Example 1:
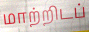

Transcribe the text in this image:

மாற்றிடப்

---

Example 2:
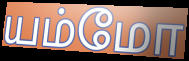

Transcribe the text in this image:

யம்மோ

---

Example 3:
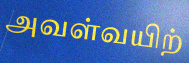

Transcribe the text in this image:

அவள்வயிற்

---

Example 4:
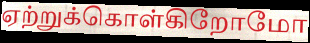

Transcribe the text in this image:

ஏற்றுக்கொள்கிறோமோ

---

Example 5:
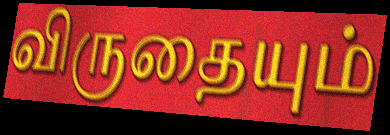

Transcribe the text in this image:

விருதையும்